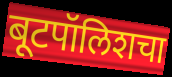
बूटपॉलिशचा